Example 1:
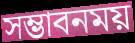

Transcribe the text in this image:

সম্ভাবনময়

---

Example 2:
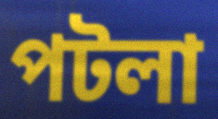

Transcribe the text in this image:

পটলা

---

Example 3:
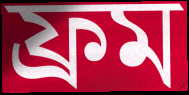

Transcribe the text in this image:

ফ্রম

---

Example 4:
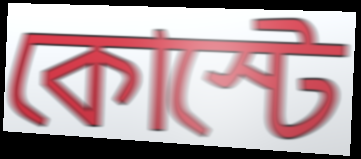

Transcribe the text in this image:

কোস্টে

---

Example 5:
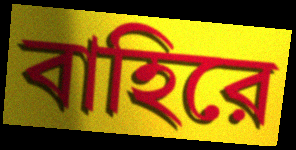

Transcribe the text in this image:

বাহিরে